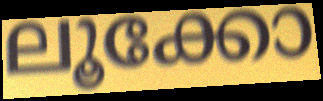
ലൂക്കോ